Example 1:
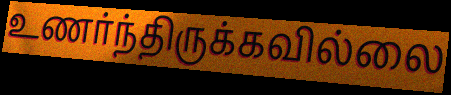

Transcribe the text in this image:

உணர்ந்திருக்கவில்லை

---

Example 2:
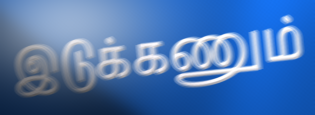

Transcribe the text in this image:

இடுக்கணும்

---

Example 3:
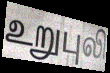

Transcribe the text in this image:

உறுபுலி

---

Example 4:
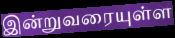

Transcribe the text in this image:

இன்றுவரையுள்ள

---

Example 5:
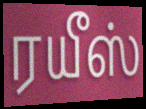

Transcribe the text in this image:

ரயீஸ்